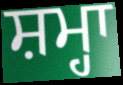
ਸ਼ਮ੍ਹਾ